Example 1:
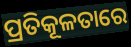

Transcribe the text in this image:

ପ୍ରତିକୂଳତାରେ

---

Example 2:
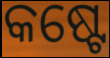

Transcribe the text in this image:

କଷ୍ଟେ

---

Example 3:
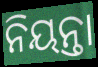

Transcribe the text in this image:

ନିୟନ୍ତା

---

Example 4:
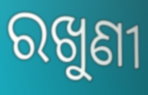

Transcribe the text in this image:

ରଖୁଣୀ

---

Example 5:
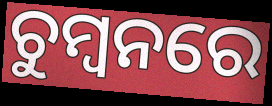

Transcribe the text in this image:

ଚୁମ୍ୱନରେ